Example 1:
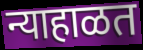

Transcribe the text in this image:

न्याहाळत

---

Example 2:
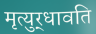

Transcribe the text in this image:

मृत्युर्धावति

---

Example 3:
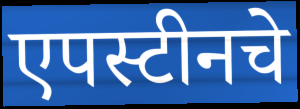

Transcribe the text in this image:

एपस्टीनचे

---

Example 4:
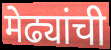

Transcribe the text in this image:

मेढ्यांची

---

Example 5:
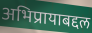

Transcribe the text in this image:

अभिप्रायाबद्दल